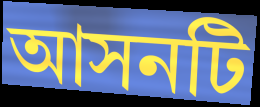
আসনটি